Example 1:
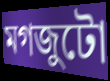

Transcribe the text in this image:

মগজুটো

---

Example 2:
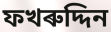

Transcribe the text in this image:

ফখৰুদ্দিন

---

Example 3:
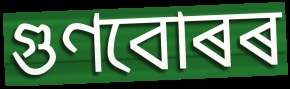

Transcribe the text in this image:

গুণবোৰৰ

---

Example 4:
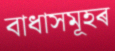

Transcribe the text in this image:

বাধাসমূহৰ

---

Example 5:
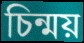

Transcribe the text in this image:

চিন্ময়